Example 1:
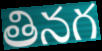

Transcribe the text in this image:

తినగ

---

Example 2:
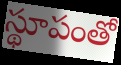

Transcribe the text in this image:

స్థూపంతో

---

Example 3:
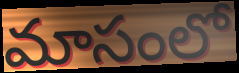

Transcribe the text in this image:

మాసంలో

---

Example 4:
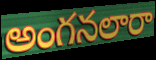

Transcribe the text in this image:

అంగనలారా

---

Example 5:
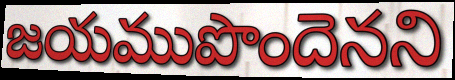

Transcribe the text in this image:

జయముపొందెనని